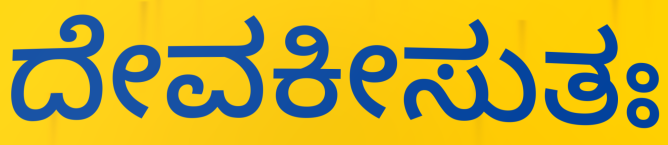
ದೇವಕೀಸುತಃ